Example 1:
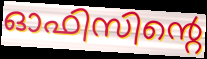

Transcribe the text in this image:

ഓഫിസിന്റെ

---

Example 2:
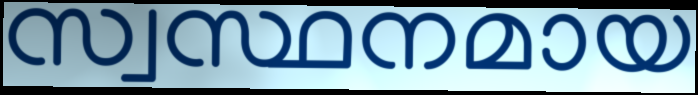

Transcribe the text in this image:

സ്വസ്ഥനമായ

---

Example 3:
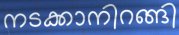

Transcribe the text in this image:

നടക്കാനിറങ്ങി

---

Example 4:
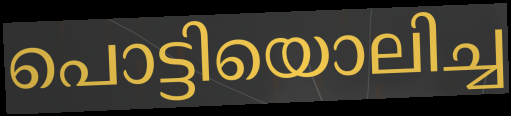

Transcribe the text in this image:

പൊട്ടിയൊലിച്ച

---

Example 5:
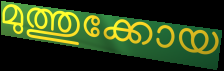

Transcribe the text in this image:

മുത്തുക്കോയ